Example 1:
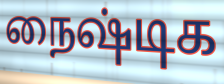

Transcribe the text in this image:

நைஷ்டிக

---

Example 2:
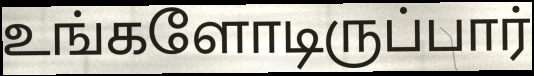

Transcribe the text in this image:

உங்களோடிருப்பார்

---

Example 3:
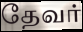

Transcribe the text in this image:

தேவர்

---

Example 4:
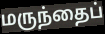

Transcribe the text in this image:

மருந்தைப்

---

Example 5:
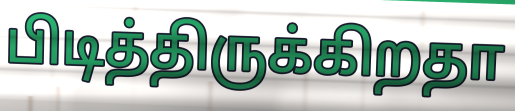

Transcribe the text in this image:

பிடித்திருக்கிறதா